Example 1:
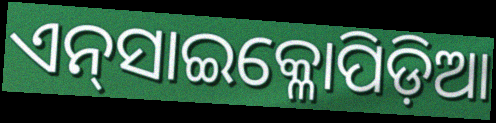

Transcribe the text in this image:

ଏନ୍‌ସାଇକ୍ଳୋପିଡ଼ିଆ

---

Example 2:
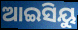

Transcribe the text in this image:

ଆଇସିୟୁ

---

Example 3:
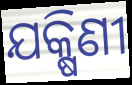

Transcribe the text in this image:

ଯକ୍ଷିଣୀ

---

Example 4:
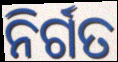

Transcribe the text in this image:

ନିର୍ଗତ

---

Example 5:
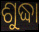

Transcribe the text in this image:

ଶୁଦ୍ଧା